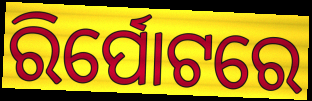
ରିର୍ପୋଟରେ